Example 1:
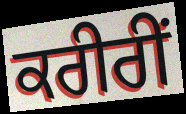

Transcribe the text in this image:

ਕਰੀਰੀਂ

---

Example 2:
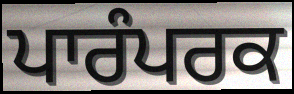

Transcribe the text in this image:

ਪਾਰੰਪਰਕ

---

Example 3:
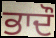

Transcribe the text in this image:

ਭਾਦੌ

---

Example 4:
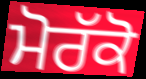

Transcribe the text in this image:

ਮੋਰੱਕੋ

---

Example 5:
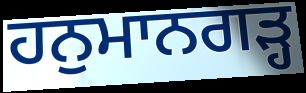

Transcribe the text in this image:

ਹਨੁਮਾਨਗੜ੍ਹ